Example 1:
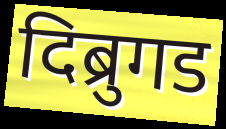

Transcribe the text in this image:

दिब्रुगड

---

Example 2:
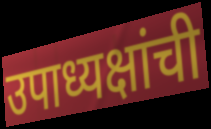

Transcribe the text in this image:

उपाध्यक्षांची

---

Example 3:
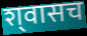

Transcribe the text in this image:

श्वासच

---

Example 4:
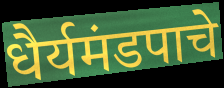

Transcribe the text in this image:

धैर्यमंडपाचे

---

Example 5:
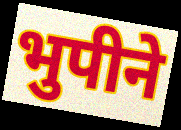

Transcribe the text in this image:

भुपीने